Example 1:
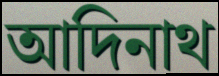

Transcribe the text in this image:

আদিনাথ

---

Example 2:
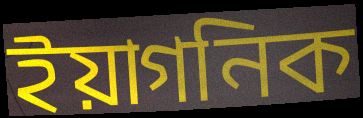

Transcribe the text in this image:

ইয়াগনিক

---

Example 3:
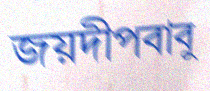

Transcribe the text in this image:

জয়দীপবাবু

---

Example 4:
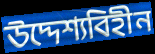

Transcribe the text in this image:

উদ্দেশ্যবিহীন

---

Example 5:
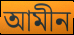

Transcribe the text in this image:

আমীন